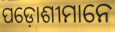
ପଡ଼ୋଶୀମାନେ